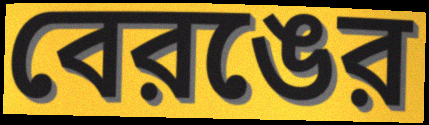
বেরঙের